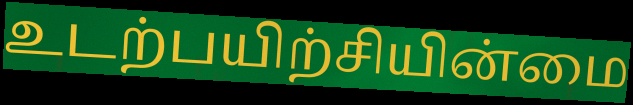
உடற்பயிற்சியின்மை